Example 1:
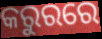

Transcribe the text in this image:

କରୁରରେ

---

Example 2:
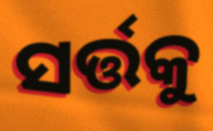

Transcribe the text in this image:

ସର୍ତ୍ତକୁ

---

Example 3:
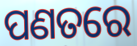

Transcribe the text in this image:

ପଣତରେ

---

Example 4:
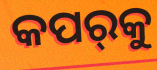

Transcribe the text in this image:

କପର୍‌କୁ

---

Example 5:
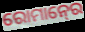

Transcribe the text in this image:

ରୋମାନ୍‍ରେ